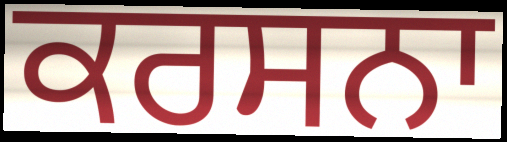
ਕਰਸਨਾ